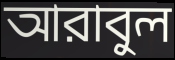
আরাবুল